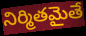
నిర్మితమైతే